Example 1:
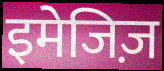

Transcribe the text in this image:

इमेजिज़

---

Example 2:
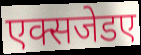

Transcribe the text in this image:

एक्सजेडए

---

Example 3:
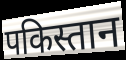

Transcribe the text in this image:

पकिस्तान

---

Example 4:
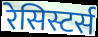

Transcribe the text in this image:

रेसिस्टर्स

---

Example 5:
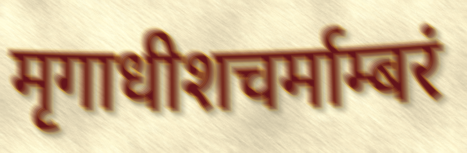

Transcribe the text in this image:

मृगाधीशचर्माम्बरं